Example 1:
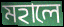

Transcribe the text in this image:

মহালে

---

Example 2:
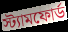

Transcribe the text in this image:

স্ট্যামফোর্ড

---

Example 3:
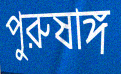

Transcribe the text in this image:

পুরুষাঙ্গ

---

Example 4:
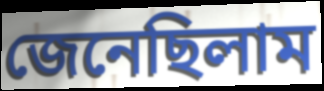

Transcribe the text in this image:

জেনেছিলাম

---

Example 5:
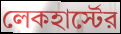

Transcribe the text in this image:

লেকহার্স্টের